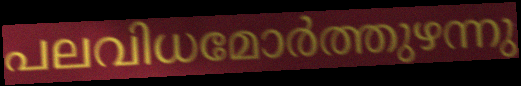
പലവിധമോർത്തുഴന്നു